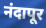
नंदापूर